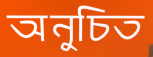
অনুচিত